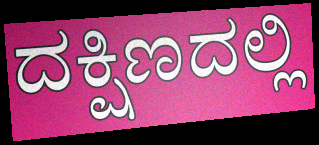
ದಕ್ಷಿಣದಲ್ಲಿ